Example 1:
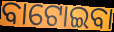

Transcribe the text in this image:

ବାଟୋଇବା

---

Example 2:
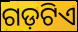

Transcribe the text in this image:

ଗଡ଼ଟିଏ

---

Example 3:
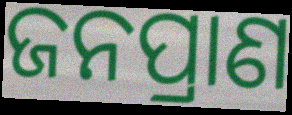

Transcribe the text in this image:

ଜନପ୍ରାଣ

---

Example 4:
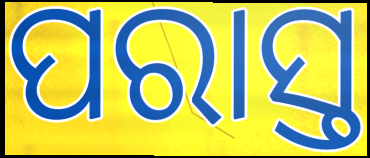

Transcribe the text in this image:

ପରାସ୍ତ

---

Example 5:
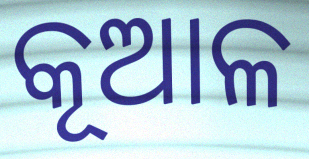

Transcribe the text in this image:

କୂଆଳ